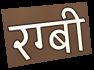
रग्बी